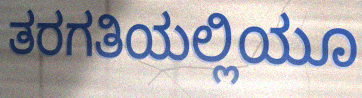
ತರಗತಿಯಲ್ಲಿಯೂ